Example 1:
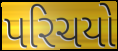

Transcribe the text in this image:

પરિચયો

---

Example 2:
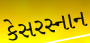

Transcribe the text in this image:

કેસરસ્નાન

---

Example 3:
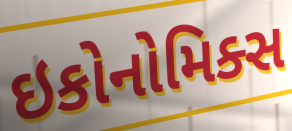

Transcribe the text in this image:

ઇકોનોમિક્સ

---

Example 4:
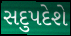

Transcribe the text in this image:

સદુપદેશે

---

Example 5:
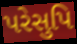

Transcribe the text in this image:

પરેસુપિ